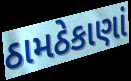
ઠામઠેકાણાં